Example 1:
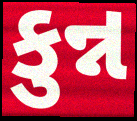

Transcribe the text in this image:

કુન્ન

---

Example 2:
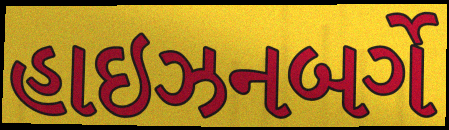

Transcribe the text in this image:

હાઇઝનબર્ગે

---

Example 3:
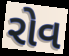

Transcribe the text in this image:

રોવ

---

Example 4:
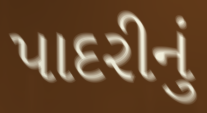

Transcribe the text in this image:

પાદરીનું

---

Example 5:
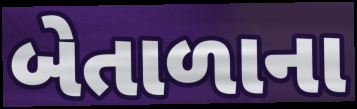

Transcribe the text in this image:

બેતાળાના